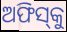
ଅଫିସ୍‌କୁ